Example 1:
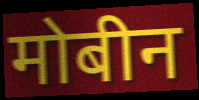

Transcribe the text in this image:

मोबीन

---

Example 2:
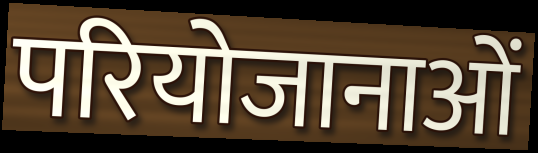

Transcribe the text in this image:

परियोजानाओं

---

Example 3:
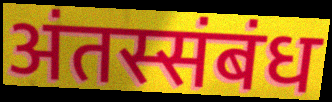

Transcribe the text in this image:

अंतस्संबंध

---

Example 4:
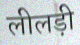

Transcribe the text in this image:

लीलड़ी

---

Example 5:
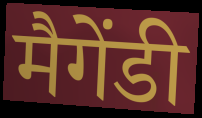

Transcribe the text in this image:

मैगेंडी